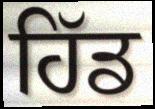
ਹਿੱਡ